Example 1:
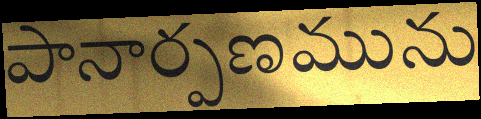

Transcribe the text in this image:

పానార్పణమును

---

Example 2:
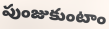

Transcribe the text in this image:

పుంజుకుంటాం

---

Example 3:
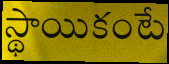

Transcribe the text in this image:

స్థాయికంటే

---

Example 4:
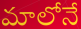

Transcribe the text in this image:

మాలోనే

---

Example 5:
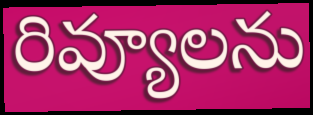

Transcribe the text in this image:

రివ్యూలను